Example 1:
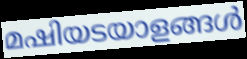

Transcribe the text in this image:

മഷിയടയാളങ്ങൾ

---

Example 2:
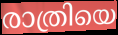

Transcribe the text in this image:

രാത്രിയെ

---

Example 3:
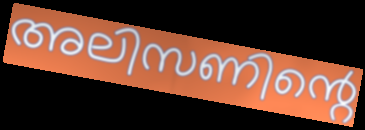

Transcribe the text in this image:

അലിസണിന്റെ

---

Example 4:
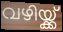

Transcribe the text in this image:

വഴിയ്ക്ക്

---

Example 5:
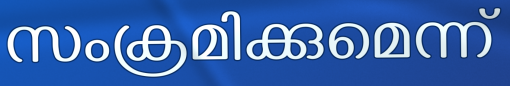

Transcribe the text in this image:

സംക്രമിക്കുമെന്ന്